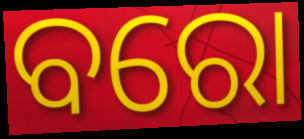
ବରୋ